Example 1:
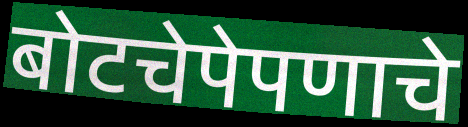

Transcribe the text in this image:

बोटचेपेपणाचे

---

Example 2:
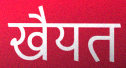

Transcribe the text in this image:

खैयत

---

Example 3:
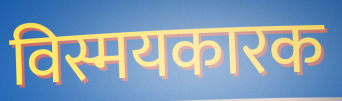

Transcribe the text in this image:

विस्मयकारक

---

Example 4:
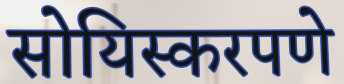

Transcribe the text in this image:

सोयिस्करपणे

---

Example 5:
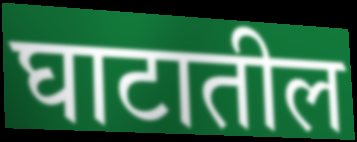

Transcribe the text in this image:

घाटातील